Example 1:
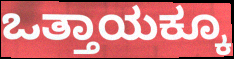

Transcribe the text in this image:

ಒತ್ತಾಯಕ್ಕೂ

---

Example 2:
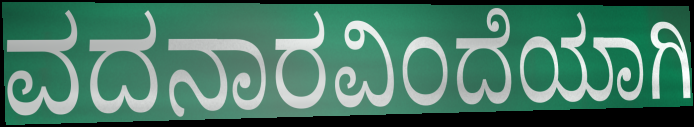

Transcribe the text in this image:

ವದನಾರವಿಂದೆಯಾಗಿ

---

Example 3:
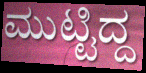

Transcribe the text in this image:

ಮುಟ್ಟಿದ್ದ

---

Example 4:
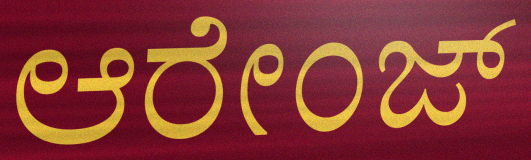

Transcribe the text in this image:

ಆರೇಂಜ್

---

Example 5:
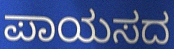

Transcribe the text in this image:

ಪಾಯಸದ